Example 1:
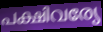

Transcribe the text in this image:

പക്ഷിവര്യേ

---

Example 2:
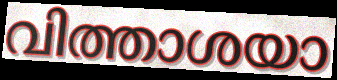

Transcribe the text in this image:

വിത്താശയാ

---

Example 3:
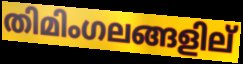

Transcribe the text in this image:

തിമിംഗലങ്ങളില്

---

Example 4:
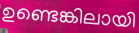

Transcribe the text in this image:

ഉണ്ടെങ്കിലായി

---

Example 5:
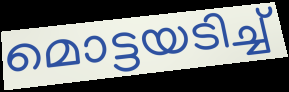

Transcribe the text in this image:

മൊട്ടയടിച്ച്